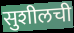
सुशीलची